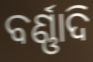
ବର୍ଣ୍ଣାଦି